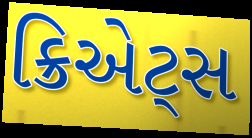
ક્રિએટ્સ